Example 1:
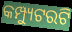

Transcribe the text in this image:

କମ୍ପ୍ୟୁଟରଟି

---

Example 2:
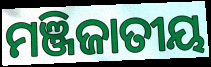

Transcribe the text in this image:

ମଞ୍ଜିଜାତୀୟ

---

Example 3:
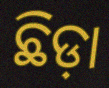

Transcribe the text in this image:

ଛିଡ଼ା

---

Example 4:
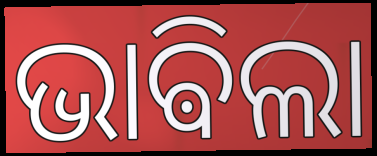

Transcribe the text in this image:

ଭାଵିଲା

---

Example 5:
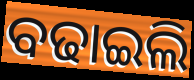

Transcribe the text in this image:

ବଢାଇଲି